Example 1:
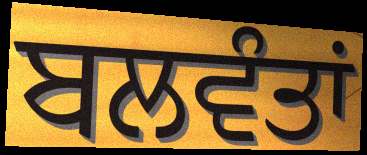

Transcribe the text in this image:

ਬਲਵੰਤਾਂ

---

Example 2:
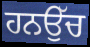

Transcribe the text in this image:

ਹਨਉੱਚ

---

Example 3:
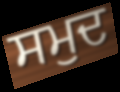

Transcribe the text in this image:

ਸਮੁਦ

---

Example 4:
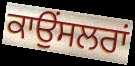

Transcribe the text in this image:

ਕਾਉਂਸਲਰਾਂ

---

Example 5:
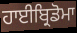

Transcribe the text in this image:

ਹਾਈਬ੍ਰਿਡੋਮਾ